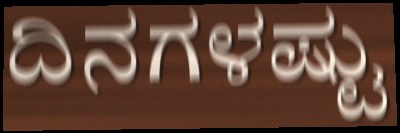
ದಿನಗಳಷ್ಟು